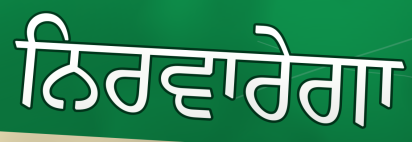
ਨਿਰਵਾਰੇਗਾ